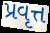
પ્રવૃત્ત